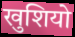
खुशियो